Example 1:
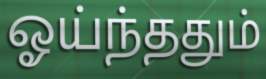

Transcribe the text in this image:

ஓய்ந்ததும்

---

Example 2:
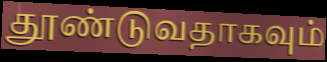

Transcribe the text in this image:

தூண்டுவதாகவும்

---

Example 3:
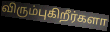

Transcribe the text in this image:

விரும்புகிறீர்களா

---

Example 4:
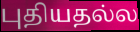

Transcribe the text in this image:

புதியதல்ல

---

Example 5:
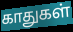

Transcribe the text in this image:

காதுகள்